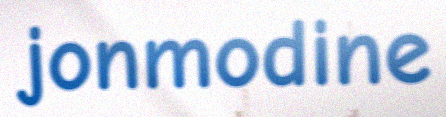
jonmodine